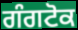
ਗੰਗਟੋਕ